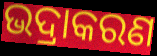
ଭଦ୍ରାକରଣ